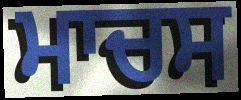
ਮਾਚਸ